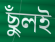
ছুঁলই